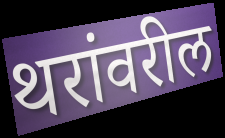
थरांवरील